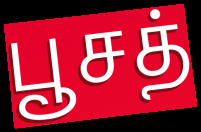
பூசத்